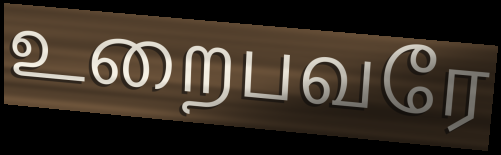
உறைபவரே